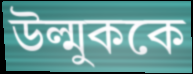
উল্মুককে